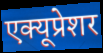
एक्यूप्रेशर